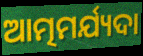
ଆତ୍ମମର୍ଯ୍ୟଦା